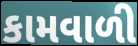
કામવાળી